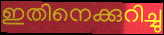
ഇതിനെക്കുറിച്ചു